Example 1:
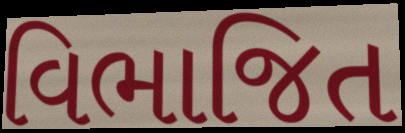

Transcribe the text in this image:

વિભાજિત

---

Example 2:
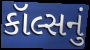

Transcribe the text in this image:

કૉલ્સનું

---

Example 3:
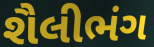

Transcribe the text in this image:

શૈલીભંગ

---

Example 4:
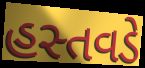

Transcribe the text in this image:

હસ્તવડે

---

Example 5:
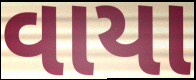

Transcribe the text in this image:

વાયા